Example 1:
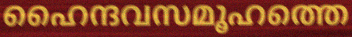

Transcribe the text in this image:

ഹൈന്ദവസമൂഹത്തെ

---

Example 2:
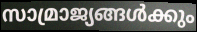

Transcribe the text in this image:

സാമ്രാജ്യങ്ങൾക്കും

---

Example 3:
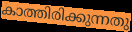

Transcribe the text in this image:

കാത്തിരിക്കുന്നതു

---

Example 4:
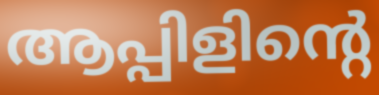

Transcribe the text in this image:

ആപ്പിളിന്റെ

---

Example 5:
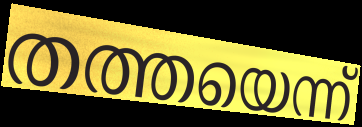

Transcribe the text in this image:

തത്തയെന്ന്